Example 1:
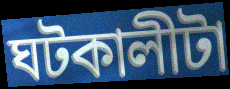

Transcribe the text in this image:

ঘটকালীটা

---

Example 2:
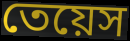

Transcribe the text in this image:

তেয়েস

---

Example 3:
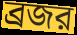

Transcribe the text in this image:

ব্রজর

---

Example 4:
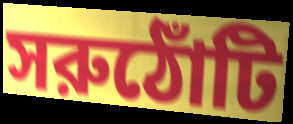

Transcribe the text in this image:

সরুঠোঁটি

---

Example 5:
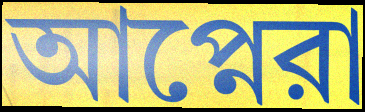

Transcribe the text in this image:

আপ্নেরা